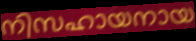
നിസഹായനായ